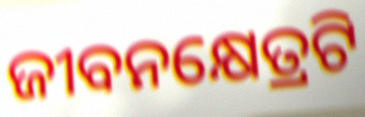
ଜୀବନକ୍ଷେତ୍ରଟି